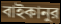
বাইকানুর